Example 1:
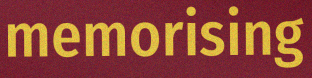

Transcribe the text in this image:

memorising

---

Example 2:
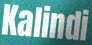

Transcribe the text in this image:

Kalindi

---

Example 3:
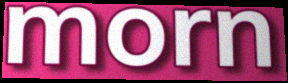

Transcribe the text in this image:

morn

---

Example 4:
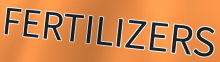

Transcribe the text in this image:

FERTILIZERS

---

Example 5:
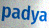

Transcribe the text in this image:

padya